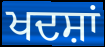
ਖਦਸ਼ਾਂ